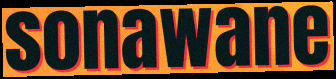
sonawane